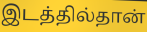
இடத்தில்தான்